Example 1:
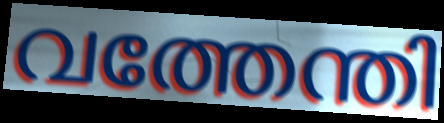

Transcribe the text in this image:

വത്തേന്തി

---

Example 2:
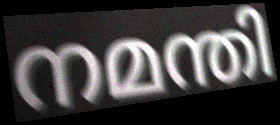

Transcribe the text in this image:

നമന്തി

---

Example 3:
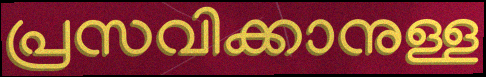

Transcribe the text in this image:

പ്രസവിക്കാനുള്ള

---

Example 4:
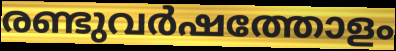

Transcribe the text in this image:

രണ്ടുവർഷത്തോളം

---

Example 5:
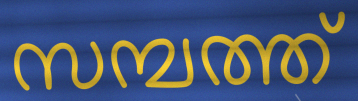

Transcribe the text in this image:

സമ്പത്ത്